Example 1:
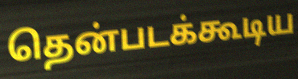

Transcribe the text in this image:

தென்படக்கூடிய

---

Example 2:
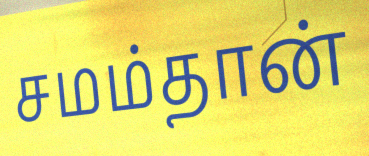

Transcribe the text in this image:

சமம்தான்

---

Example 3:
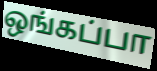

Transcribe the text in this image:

ஒங்கப்பா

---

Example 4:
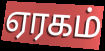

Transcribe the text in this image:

ஏரகம்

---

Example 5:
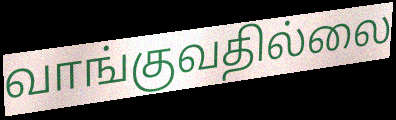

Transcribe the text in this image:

வாங்குவதில்லை